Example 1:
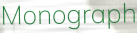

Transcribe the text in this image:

Monograph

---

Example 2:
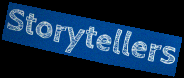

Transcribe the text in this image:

Storytellers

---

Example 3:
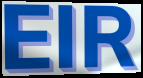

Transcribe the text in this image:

EIR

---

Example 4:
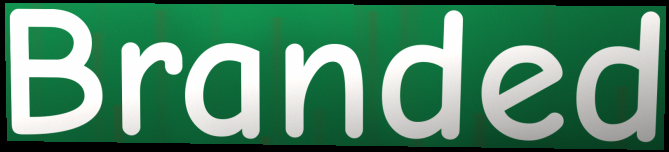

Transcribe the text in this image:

Branded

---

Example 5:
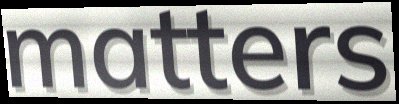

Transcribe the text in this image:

matters